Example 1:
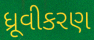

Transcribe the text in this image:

ધ્રૂવીકરણ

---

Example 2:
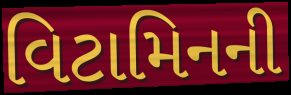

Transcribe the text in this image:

વિટામિનની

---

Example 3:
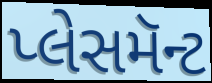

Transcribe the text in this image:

પ્લેસમૅન્ટ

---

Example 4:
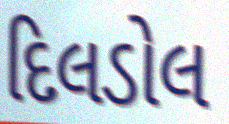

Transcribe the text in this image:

દિલડોલ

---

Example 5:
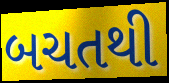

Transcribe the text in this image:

બચતથી